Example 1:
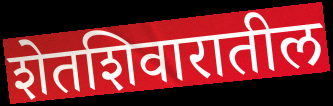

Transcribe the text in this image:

शेतशिवारातील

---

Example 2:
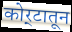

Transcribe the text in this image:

कोर्टातून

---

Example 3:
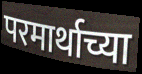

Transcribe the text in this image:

परमार्थाच्या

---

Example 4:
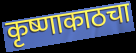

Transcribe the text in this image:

कृष्णाकाठचा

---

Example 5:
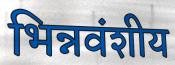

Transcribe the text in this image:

भिन्नवंशीय